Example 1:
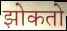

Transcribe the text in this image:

झोकतो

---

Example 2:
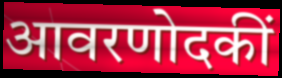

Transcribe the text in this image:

आवरणोदकीं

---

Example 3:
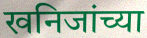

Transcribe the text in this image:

खनिजांच्या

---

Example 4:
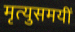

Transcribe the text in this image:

मृत्युसमयीं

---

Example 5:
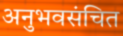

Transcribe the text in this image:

अनुभवसंचित